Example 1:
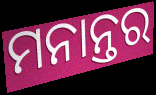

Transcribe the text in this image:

ମନାନ୍ତର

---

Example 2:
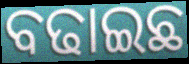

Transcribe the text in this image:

ବଢାଇଛ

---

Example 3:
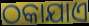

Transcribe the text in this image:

ଠକାଯାଏ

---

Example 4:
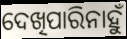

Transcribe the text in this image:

ଦେଖିପାରିନାହୁଁ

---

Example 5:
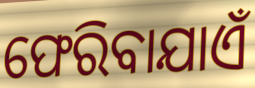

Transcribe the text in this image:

ଫେରିବାଯାଏଁ